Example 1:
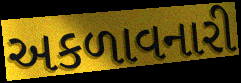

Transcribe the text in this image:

અકળાવનારી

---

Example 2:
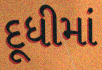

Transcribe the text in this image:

દૂધીમાં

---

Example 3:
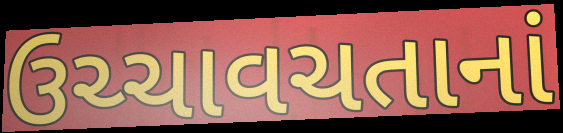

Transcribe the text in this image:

ઉચ્ચાવચતાનાં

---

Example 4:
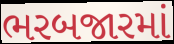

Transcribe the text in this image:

ભરબજારમાં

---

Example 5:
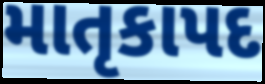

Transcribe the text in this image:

માતૃકાપદ